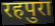
रहपुरा